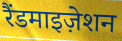
रैंडमाइज़ेशन